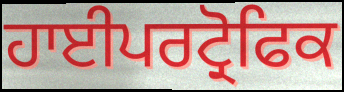
ਹਾਈਪਰਟ੍ਰੋਫਿਕ